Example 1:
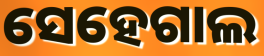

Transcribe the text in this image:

ସେହେଗାଲ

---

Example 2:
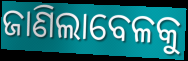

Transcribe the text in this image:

ଜାଣିଲାବେଳକୁ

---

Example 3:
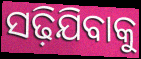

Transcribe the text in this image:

ସଢ଼ିଯିବାକୁ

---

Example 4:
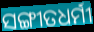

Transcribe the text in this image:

ସଙ୍ଗୀତଧର୍ମୀ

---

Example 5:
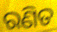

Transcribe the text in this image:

ରଣିତ